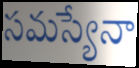
సమస్యేనా